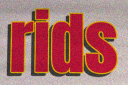
rids